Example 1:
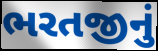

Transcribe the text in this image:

ભરતજીનું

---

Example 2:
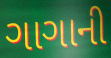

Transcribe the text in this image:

ગાગાની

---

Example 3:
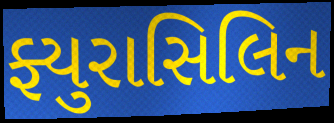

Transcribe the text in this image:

ફ્યુરાસિલિન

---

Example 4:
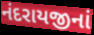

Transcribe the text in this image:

નંદરાયજીનાં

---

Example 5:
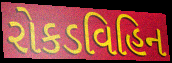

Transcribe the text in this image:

રોકડવિહિન